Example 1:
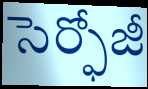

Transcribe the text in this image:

సెర్ఫోజీ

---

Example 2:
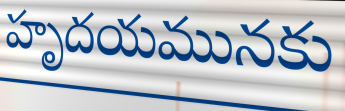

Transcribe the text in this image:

హృదయమునకు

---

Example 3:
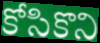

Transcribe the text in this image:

కోసికొని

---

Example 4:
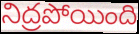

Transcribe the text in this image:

నిద్రపోయింది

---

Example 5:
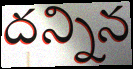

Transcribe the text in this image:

దన్నిన